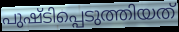
പുഷ്ടിപ്പെടുത്തിയത്